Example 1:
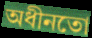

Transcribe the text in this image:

অধীনতো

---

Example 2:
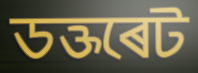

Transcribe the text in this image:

ডক্তৰেট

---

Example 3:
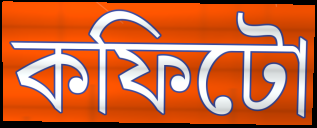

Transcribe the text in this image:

কফিটো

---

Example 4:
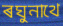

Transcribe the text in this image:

ৰঘুনাথে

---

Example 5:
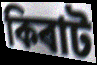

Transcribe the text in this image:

কিৰাট